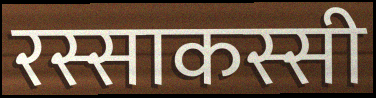
रस्साकस्सी